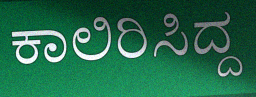
ಕಾಲಿರಿಸಿದ್ದ